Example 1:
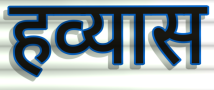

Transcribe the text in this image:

हव्यास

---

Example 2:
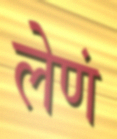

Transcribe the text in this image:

लेणं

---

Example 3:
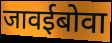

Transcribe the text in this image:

जावईबोवा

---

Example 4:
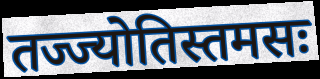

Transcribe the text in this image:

तज्ज्योतिस्तमसः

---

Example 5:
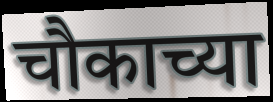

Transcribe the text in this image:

चौकाच्या